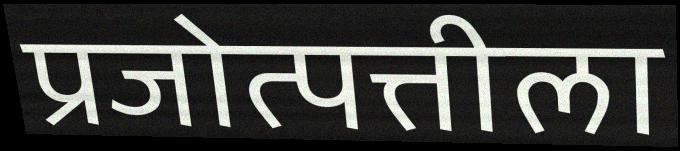
प्रजोत्पत्तीला